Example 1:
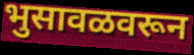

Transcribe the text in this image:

भुसावळवरून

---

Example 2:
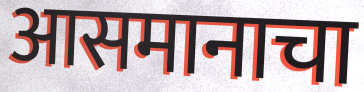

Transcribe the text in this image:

आसमानाचा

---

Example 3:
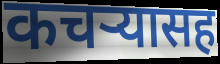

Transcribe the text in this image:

कचऱ्यासह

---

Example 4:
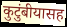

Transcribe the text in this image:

कुटुंबीयासह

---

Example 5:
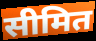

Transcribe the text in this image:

सीमित